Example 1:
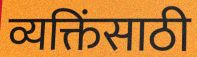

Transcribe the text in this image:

व्यक्तिंसाठी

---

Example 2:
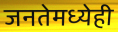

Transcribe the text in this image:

जनतेमध्येही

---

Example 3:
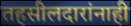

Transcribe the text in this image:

तहसीलदारांनाही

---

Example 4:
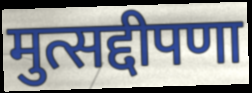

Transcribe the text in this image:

मुत्सद्दीपणा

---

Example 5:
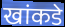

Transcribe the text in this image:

खांकडे